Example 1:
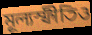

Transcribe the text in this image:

মূল্যস্ফীতিও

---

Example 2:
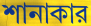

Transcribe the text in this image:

শানাকার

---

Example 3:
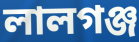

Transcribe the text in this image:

লালগঞ্জ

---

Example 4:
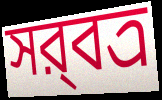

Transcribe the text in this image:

সর্‍বত্র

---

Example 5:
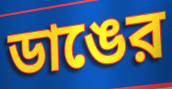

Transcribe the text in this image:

ডাঙের